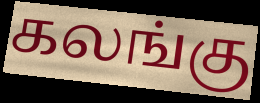
கலங்கு